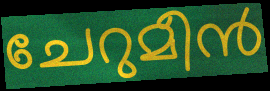
ചേറുമീൻ